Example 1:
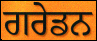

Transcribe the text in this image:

ਗਰੇਡਨ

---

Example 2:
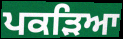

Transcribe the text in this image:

ਪਕੜਿਆ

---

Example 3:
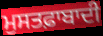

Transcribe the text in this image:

ਮੁਸਤਫ਼ਾਬਾਦੀ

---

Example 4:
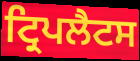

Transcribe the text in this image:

ਟ੍ਰਿਪਲੈਟਸ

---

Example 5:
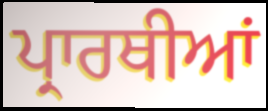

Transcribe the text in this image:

ਪ੍ਰਾਰਥੀਆਂ